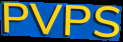
PVPS